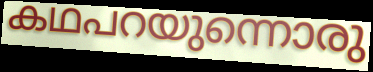
കഥപറയുന്നൊരു